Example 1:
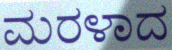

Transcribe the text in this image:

ಮರಳಾದ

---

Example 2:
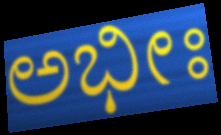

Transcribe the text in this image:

ಅಭೀಃ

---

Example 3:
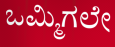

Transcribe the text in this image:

ಒಮ್ಮಿಗಲೇ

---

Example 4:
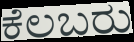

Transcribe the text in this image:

ಕೆಲಬರು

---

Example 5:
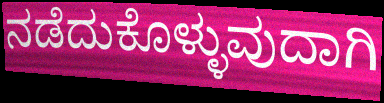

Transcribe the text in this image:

ನಡೆದುಕೊಳ್ಳುವುದಾಗಿ